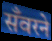
सँवरने